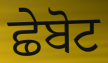
ਛੇਬੋਟ